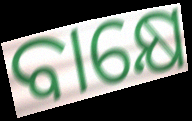
ବାକ୍ଷେ